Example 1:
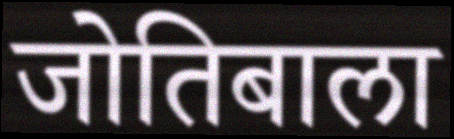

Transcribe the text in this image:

जोतिबाला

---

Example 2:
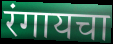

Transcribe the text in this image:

रंगायचा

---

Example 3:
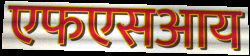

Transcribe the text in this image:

एफएसआय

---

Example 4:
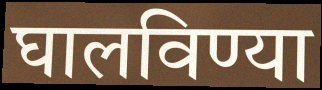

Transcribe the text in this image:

घालविण्या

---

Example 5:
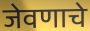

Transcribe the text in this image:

जेवणाचे